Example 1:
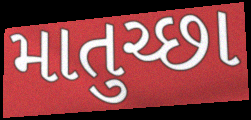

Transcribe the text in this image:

માતુચ્છા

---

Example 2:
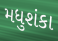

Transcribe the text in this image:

મધુશંકા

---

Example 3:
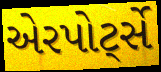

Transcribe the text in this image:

એરપોર્ટ્સે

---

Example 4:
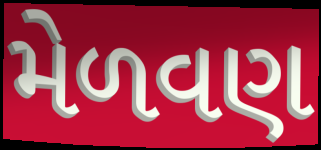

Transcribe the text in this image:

મેળવણ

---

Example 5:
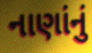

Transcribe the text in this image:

નાણાંનું